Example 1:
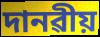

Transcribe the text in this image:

দানৱীয়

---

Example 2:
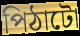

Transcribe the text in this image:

পিঠাটো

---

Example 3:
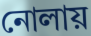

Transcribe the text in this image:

নোলায়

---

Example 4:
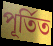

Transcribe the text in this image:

পূৰ্তিত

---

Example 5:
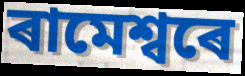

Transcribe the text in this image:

ৰামেশ্বৰে